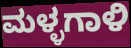
ಮಳ್ಳಗಾಳಿ